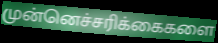
முன்னெச்சரிக்கைகளை